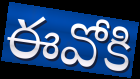
ఈవోకి